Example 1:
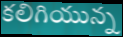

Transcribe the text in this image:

కలిగియున్న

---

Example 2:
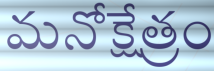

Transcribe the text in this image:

మనోక్షేత్రం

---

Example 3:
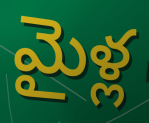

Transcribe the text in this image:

మైళ్ల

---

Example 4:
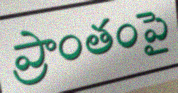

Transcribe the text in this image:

ప్రాంతంపై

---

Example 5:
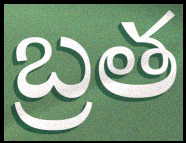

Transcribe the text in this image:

బ్రత